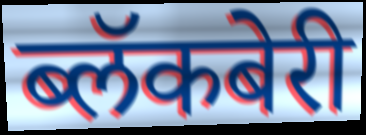
ब्लॅकबेरी